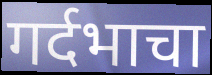
गर्दभाचा